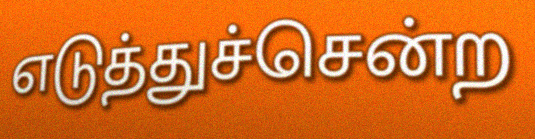
எடுத்துச்சென்ற